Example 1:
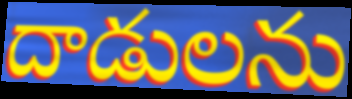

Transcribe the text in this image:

దాడులను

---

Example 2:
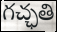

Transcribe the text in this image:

గచ్ఛతి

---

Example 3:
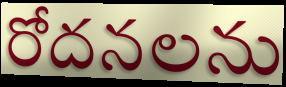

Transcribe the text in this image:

రోదనలను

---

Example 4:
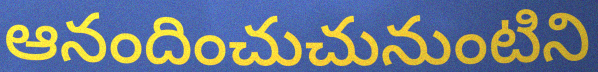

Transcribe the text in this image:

ఆనందించుచునుంటిని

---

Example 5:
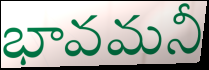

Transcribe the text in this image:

భావమనీ